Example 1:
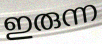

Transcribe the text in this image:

ഇരുന്ന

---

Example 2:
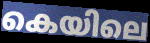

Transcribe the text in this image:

കെയിലെ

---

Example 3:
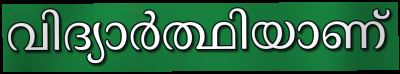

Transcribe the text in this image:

വിദ്യാർത്ഥിയാണ്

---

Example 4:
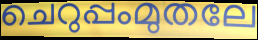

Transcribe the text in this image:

ചെറുപ്പംമുതലേ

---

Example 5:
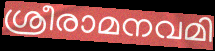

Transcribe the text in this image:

ശ്രീരാമനവമി